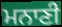
ਮਨਾਣੀ